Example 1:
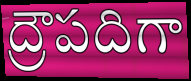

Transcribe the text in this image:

ద్రౌపదిగా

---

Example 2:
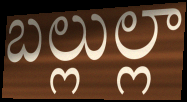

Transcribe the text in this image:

బల్లుల్లా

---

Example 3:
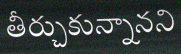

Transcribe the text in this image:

తీర్చుకున్నానని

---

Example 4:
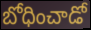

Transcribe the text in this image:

బోధించాడో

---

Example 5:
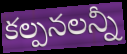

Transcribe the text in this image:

కల్పనలన్నీ